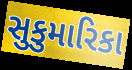
સુકુમારિકા